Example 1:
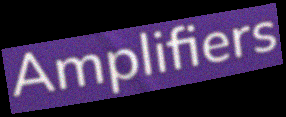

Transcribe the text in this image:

Amplifiers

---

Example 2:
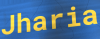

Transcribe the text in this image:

Jharia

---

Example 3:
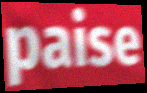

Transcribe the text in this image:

paise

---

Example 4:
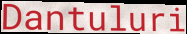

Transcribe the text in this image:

Dantuluri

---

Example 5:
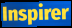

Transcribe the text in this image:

Inspirer